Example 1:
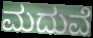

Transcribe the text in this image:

ಮದುವೆ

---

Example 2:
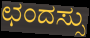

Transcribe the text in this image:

ಛಂದಸ್ಸು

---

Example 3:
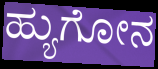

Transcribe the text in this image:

ಹ್ಯುಗೋನ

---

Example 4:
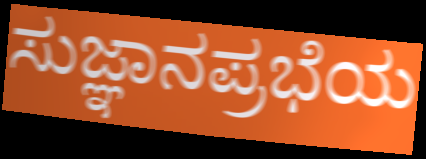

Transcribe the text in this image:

ಸುಜ್ಞಾನಪ್ರಭೆಯ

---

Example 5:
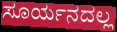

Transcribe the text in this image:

ಸೂರ್ಯನದಲ್ಲ